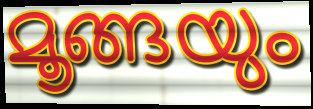
മൂങ്ങയും